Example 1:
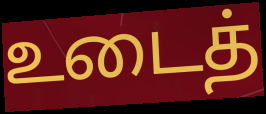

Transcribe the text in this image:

உடைத்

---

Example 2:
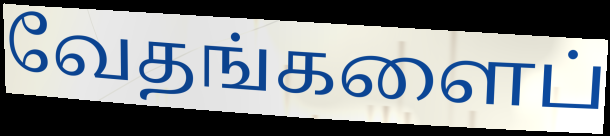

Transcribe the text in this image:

வேதங்களைப்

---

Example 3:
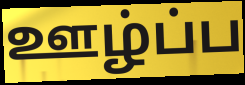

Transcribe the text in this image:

ஊழ்ப்ப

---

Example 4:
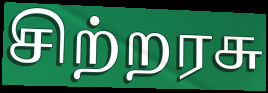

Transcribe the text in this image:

சிற்றரசு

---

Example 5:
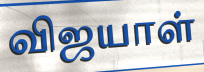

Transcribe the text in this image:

விஜயாள்